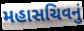
મહાસચિવનું